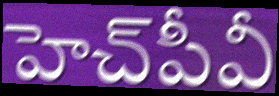
హెచ్‌పీవీ